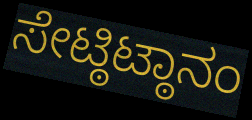
ಸೇಟ್ಠಿಟ್ಠಾನಂ